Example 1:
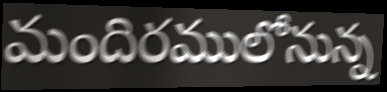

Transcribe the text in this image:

మందిరములోనున్న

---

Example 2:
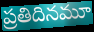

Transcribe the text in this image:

ప్రతిదినమూ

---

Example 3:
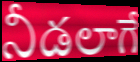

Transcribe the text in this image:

నీడలాగే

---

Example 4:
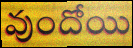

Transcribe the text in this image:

వుందోయి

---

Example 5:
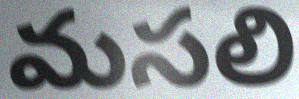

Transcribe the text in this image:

మసలి